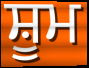
ਸ਼ੂਮ